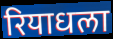
रियाधला